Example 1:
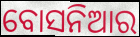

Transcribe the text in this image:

ବୋସନିଆର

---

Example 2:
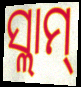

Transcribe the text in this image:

ସ୍ଲାମ୍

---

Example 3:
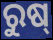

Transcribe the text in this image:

ରୁଷ୍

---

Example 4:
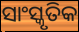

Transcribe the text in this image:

ସାଂସ୍କୃତିକ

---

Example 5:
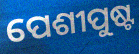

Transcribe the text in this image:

ପେଶୀପୁଷ୍ଟ